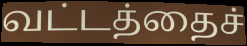
வட்டத்தைச்